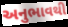
અનુભાવથી